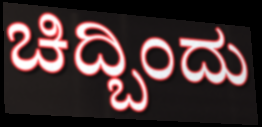
ಚಿದ್ಬಿಂದು